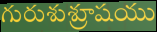
గురుశుశ్రూషయు